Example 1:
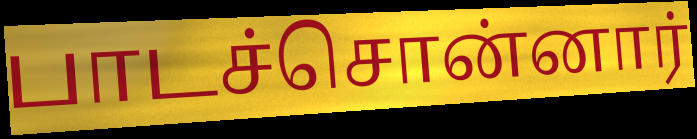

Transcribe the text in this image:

பாடச்சொன்னார்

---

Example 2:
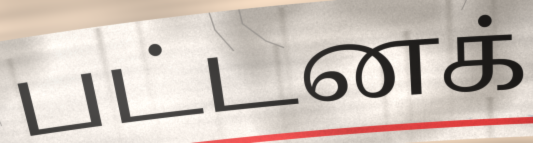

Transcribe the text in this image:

பட்டனக்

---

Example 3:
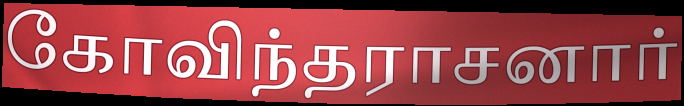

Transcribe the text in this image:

கோவிந்தராசனார்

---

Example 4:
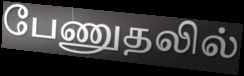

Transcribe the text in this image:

பேணுதலில்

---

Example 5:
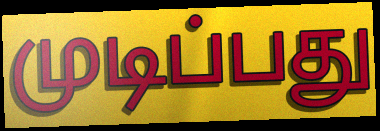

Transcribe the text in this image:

முடிப்பது